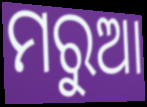
ମରୁଆ